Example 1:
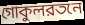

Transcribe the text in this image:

গোকুলরতনে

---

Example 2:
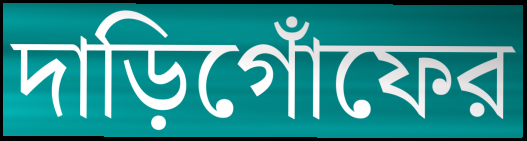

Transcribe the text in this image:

দাড়িগোঁফের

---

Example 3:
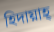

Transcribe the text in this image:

হিদায়াহ্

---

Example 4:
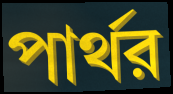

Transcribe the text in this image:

পার্থর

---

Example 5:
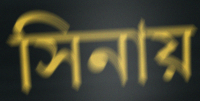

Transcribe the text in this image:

সিনায়